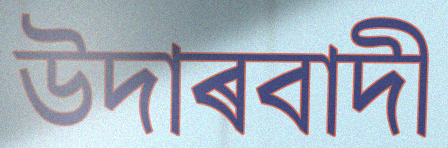
উদাৰবাদী